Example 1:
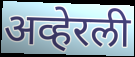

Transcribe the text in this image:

अव्हेरली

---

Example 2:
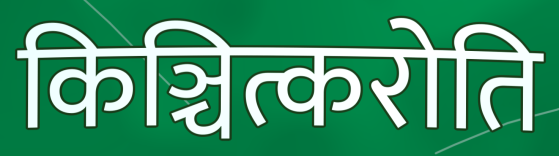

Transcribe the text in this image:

किञ्चित्करोति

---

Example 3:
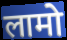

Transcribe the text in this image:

लामो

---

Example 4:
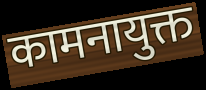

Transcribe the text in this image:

कामनायुक्त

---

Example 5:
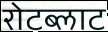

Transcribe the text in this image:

रोटब्लाट